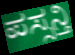
ಪಸ್ಸನ್ತಿ